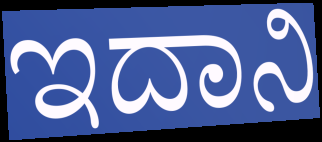
ಇದಾನಿ